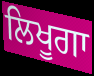
ਲਿਖੂਗਾ